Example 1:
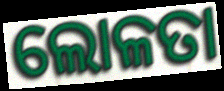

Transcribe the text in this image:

ଲୋଳତା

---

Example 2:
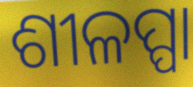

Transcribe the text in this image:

ଶୀଳପ୍ପା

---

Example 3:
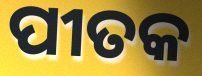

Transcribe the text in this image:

ପୀତକ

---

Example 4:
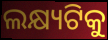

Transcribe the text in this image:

ଲକ୍ଷ୍ୟଟିକୁ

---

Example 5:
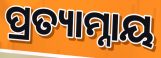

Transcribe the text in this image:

ପ୍ରତ୍ୟାମ୍ନାୟ